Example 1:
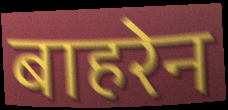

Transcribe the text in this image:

बाहरेन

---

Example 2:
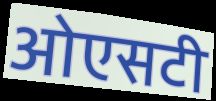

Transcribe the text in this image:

ओएसटी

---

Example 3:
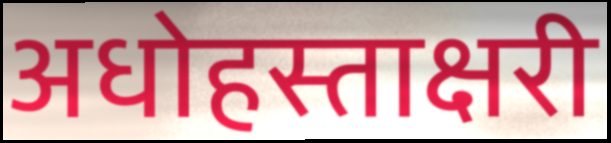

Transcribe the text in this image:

अधोहस्ताक्षरी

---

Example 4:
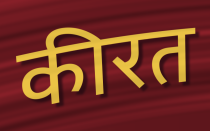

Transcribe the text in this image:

कीरत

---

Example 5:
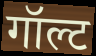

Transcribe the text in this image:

गॉल्ट